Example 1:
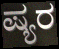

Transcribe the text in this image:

ಷ್ಯರ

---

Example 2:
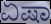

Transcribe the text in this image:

ಏಷಾ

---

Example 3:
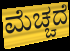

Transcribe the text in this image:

ಮೆಚ್ಚದೆ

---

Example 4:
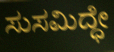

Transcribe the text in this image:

ಸುಸಮಿದ್ಧೇ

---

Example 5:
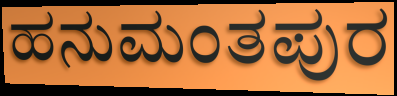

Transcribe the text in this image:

ಹನುಮಂತಪುರ